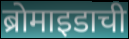
ब्रोमाइडाची